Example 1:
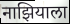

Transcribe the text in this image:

नाझियाला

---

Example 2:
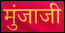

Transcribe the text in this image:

मुंजाजी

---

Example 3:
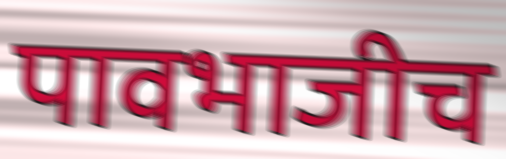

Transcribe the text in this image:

पावभाजीच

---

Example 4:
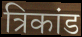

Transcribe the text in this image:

त्रिकांड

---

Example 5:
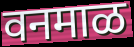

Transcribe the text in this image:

वनमाळ